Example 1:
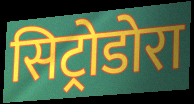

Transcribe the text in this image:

सिट्रोडोरा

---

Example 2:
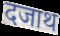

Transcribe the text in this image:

दजाथ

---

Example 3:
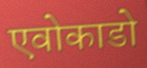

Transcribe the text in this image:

एवोकाडो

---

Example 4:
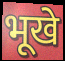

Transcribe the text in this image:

भूखे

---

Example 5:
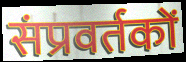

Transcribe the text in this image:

संप्रवर्तकों